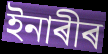
ইনাৰীৰ